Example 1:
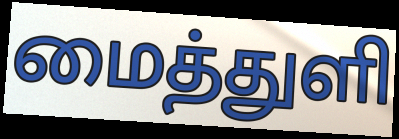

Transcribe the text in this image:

மைத்துளி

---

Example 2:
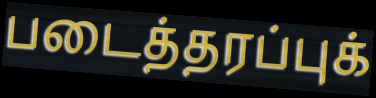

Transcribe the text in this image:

படைத்தரப்புக்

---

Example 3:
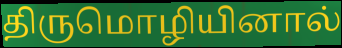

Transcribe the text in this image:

திருமொழியினால்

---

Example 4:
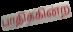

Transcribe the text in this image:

பாதிக்கின்ற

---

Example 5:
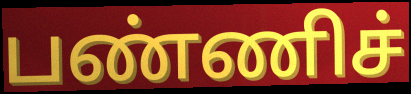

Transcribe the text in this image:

பண்ணிச்